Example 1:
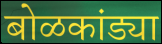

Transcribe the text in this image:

बोळकांड्या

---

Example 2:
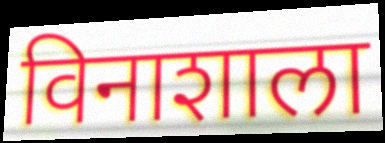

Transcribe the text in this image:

विनाशाला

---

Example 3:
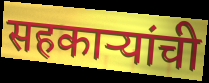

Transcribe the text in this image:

सहकाऱ्यांची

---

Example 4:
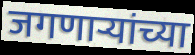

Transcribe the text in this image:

जगणाऱ्यांच्या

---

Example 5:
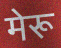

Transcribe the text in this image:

मेरू